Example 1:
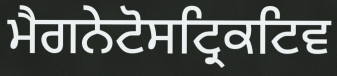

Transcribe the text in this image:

ਮੈਗਨੇਟੋਸਟ੍ਰਿਕਟਿਵ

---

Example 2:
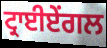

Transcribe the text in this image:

ਟ੍ਰਾਈਏਂਗਲ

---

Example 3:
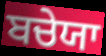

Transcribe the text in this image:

ਬਚੇਯਾ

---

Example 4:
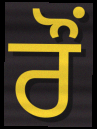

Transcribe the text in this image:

ਰੌਂ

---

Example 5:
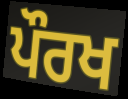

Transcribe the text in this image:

ਪੌਰਖ